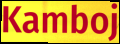
Kamboj